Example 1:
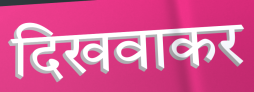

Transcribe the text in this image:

दिखवाकर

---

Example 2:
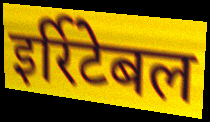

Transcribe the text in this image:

इर्रिटेबल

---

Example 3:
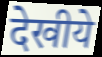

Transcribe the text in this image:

देखीये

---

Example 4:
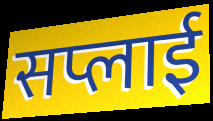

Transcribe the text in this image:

सप्लाई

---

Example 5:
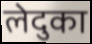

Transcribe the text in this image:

लेदुका